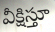
వీక్షిస్తూ